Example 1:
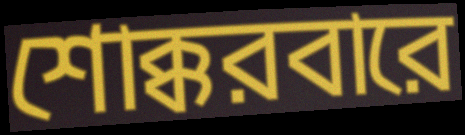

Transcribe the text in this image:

শোক্করবারে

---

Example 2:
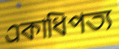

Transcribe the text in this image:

একাধিপত্য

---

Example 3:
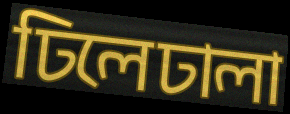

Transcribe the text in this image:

ঢিলেঢালা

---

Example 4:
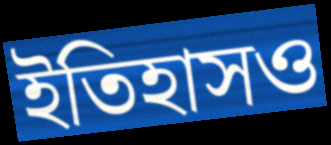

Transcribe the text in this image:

ইতিহাসও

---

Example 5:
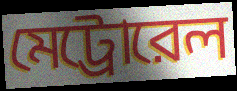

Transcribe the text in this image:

মেট্রোরেল